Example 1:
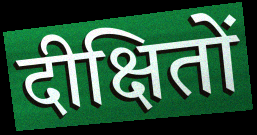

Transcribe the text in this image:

दीक्षितों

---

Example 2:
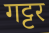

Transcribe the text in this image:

गट्टर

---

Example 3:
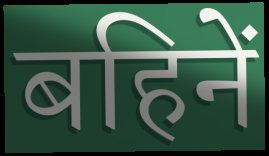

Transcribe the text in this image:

बहिनें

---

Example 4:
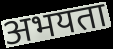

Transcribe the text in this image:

अभयता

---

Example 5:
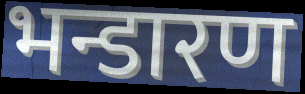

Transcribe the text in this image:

भन्डारण